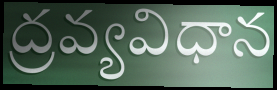
ద్రవ్యవిధాన